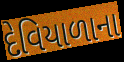
દેવિયાળાના